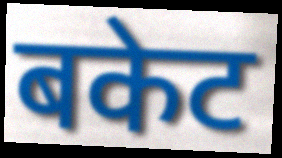
बकेट